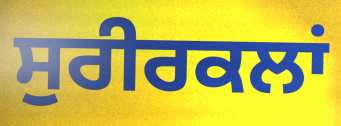
ਸੁਰੀਰਕਲਾਂ